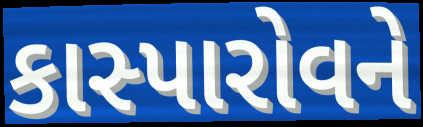
કાસ્પારોવને